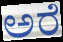
ಅರೆ